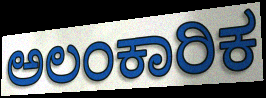
ಅಲಂಕಾರಿಕ